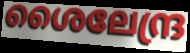
ശൈലേന്ദ്ര